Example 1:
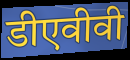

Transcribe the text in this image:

डीएवीवी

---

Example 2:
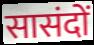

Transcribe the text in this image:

सासंदों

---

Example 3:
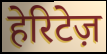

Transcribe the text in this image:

हेरिटेज़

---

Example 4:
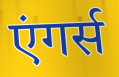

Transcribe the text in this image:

एंगर्स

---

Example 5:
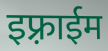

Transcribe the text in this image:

इफ़्राईम